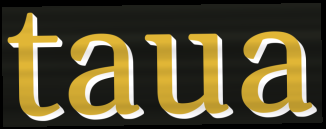
taua